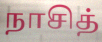
நாசித்